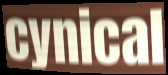
cynical